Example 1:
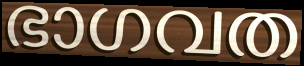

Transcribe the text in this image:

ഭാഗവത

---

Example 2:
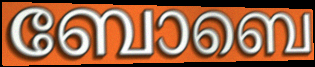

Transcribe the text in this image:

ബോബെ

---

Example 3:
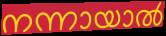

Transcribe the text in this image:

നന്നായാൽ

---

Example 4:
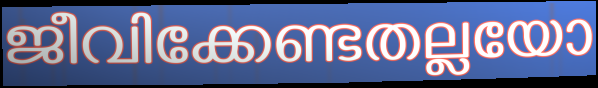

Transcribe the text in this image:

ജീവിക്കേണ്ടതല്ലയോ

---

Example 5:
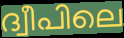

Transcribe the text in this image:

ദ്വീപിലെ